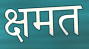
क्षमत